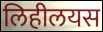
लिहीलयस